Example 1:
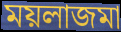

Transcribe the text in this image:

ময়লাজমা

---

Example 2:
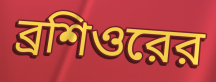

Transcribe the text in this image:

ব্রশিওরের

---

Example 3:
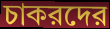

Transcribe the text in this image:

চাকরদের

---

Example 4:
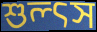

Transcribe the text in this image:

শুল্ৎস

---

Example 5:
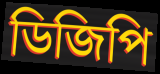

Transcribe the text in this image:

ডিজিপি